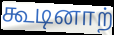
கூடினாற்